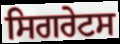
ਸਿਗਰੇਟਸ